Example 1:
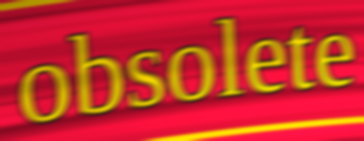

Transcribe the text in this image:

obsolete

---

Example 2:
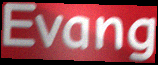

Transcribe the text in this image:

Evang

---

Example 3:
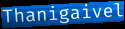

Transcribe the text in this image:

Thanigaivel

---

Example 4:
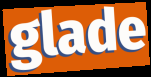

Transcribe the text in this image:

glade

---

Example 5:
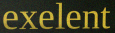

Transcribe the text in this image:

exelent